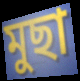
মুছা